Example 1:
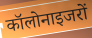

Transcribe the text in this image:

कॉलोनाइजरों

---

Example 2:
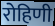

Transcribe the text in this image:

रोहिणी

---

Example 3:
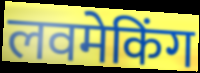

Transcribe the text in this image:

लवमेकिंग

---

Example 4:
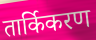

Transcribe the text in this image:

तार्किकरण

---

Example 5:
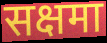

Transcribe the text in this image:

सक्षमा